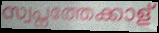
സ്വപ്നത്തേക്കാള്